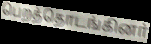
பெறத்தொடங்கினர்